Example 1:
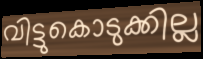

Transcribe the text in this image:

വിട്ടുകൊടുക്കില്ല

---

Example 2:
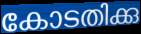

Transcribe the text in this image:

കോടതിക്കു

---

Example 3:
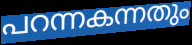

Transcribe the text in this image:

പറന്നകന്നതും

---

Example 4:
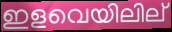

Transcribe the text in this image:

ഇളവെയിലില്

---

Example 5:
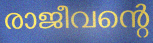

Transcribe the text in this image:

രാജീവന്റെ